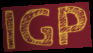
IGP